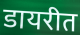
डायरीत